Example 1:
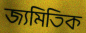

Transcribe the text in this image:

জ্যমিতিক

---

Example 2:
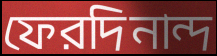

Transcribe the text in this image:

ফেরদিনান্দ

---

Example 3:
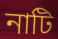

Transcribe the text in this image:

নাটি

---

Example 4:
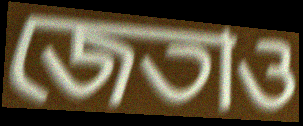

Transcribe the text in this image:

জেতাও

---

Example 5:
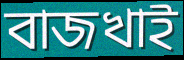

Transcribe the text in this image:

বাজখাই